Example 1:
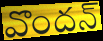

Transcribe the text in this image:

వొందన్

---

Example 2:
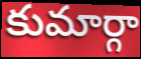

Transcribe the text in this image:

కుమార్గా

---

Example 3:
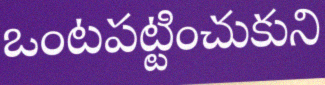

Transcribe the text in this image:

ఒంటపట్టించుకుని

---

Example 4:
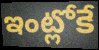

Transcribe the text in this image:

ఇంట్లోకే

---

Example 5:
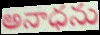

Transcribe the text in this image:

అనాధను